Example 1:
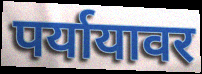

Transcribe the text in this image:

पर्यायावर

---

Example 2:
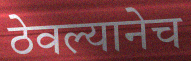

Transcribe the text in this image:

ठेवल्यानेच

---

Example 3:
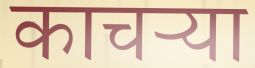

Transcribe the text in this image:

काचऱ्या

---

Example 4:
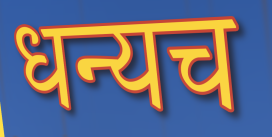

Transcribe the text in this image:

धन्यच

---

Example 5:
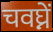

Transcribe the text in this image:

चवघ्नें